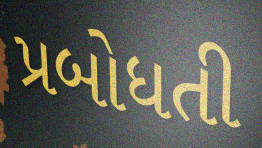
પ્રબોધતી